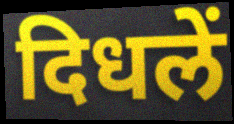
दिधलें